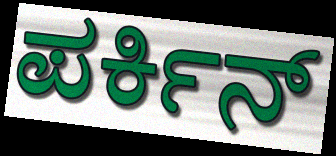
ಪರ್ಕಿನ್